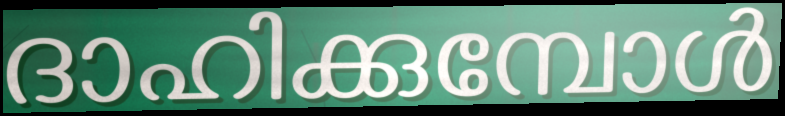
ദാഹിക്കുമ്പോൾ